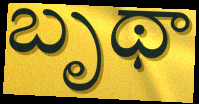
బృథా